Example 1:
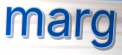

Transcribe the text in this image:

marg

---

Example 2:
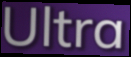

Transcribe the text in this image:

Ultra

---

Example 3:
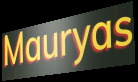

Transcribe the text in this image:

Mauryas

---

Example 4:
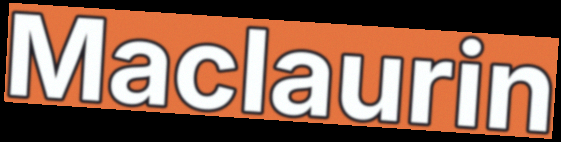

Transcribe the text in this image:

Maclaurin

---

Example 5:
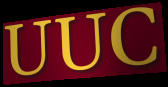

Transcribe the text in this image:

UUC